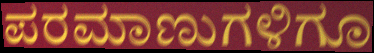
ಪರಮಾಣುಗಳಿಗೂ